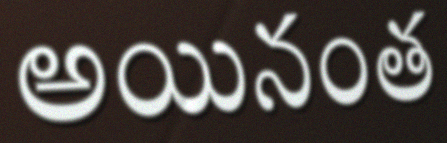
అయినంత